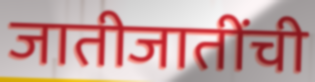
जातीजातींची